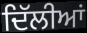
ਦਿੱਲੀਆਂ